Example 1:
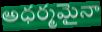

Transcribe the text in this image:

అధర్మమైనా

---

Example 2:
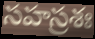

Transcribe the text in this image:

సహస్రశః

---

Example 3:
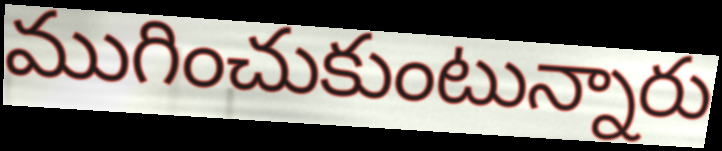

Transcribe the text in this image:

ముగించుకుంటున్నారు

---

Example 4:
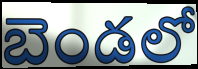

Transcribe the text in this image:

బెండలో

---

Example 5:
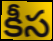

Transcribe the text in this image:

కీస